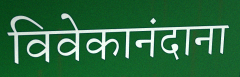
विवेकानंदाना